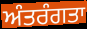
ਅੰਤਰੰਗਤਾ